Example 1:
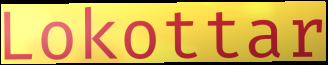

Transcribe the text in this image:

Lokottar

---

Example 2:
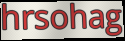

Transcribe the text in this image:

hrsohag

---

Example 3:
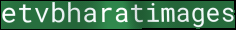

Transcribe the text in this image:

etvbharatimages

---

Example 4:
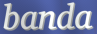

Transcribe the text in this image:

banda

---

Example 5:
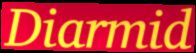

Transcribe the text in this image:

Diarmid